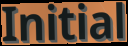
Initial